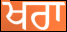
ਖਰਾ